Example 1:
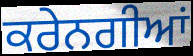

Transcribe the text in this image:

ਕਰੇਨਗੀਆਂ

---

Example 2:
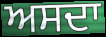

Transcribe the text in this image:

ਅਸਦਾ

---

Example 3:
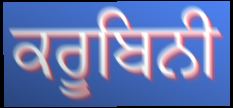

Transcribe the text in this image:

ਕਰੂਬਿਨੀ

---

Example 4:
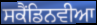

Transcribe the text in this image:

ਸਕੈਂਡਿਨਵੀਆ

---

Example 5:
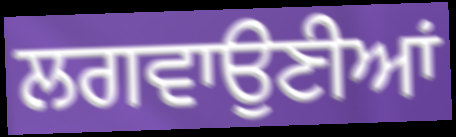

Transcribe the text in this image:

ਲਗਵਾਉਣੀਆਂ